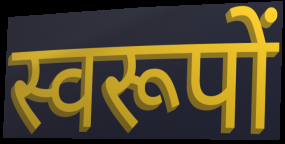
स्वरूपों